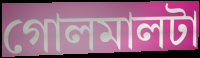
গোলমালটা